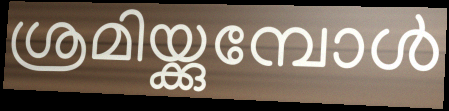
ശ്രമിയ്ക്കുമ്പോൾ